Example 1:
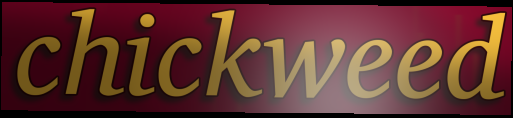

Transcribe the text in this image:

chickweed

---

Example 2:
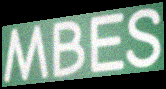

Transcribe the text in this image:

MBES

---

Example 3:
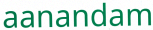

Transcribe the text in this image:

aanandam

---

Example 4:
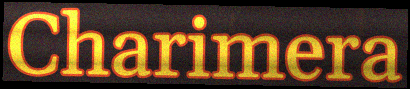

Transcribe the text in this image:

Charimera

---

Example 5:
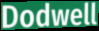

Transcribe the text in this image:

Dodwell